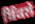
ਬਿੰਕਲੇ